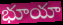
భూయా